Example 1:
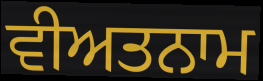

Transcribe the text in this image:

ਵੀਅਤਨਾਮ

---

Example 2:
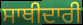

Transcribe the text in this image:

ਸਾਥੀਦਾਰੀ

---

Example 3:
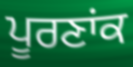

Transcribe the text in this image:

ਪੂਰਣਾਂਕ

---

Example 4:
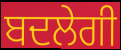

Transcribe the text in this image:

ਬਦਲੇਗੀ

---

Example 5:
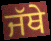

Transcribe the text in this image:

ਜੱਥੇ